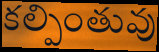
కల్పింతువు